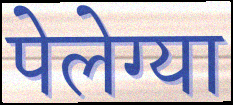
पेलेग्या